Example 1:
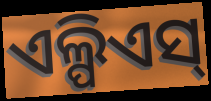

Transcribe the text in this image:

ଏଲ୍ପିଏସ୍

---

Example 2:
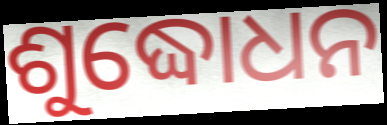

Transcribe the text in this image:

ଶୁଦ୍ଧୋଧନ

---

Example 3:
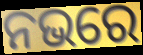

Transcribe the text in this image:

ନଭରେ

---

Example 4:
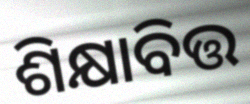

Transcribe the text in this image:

ଶିକ୍ଷାବିତ୍ତ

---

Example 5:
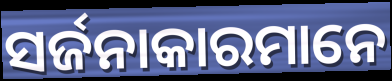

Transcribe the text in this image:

ସର୍ଜନାକାରମାନେ